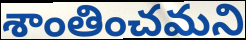
శాంతించమని